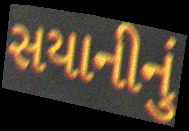
સયાનીનું